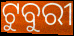
ଟୁବୁରୀ